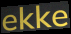
ekke